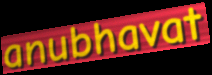
anubhavat